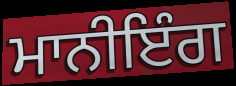
ਮਾਨੀਇੰਗ